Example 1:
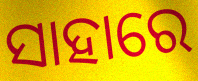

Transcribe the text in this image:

ସାହାରେ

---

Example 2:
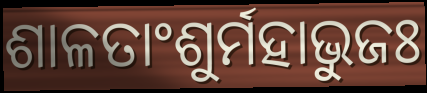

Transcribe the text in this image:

ଶାଳତାଂଶୁର୍ମହାଭୁଜଃ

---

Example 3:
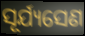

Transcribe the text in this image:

ସୂର୍ଯ୍ୟସେଣ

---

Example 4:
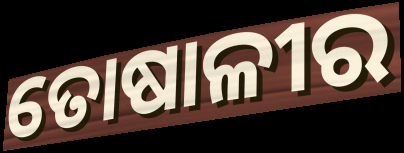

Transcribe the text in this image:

ତୋଷାଳୀର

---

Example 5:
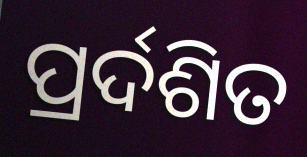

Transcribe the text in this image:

ପ୍ରର୍ଦଶିତ